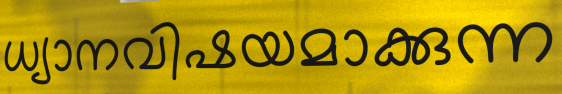
ധ്യാനവിഷയമാക്കുന്ന